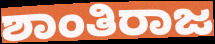
ಶಾಂತಿರಾಜ